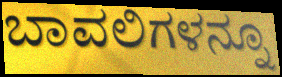
ಬಾವಲಿಗಳನ್ನೂ